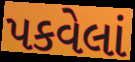
પકવેલાં